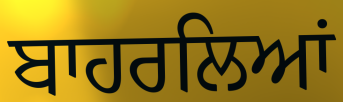
ਬਾਹਰਲਿਆਂ